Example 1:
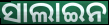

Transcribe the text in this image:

ସାଲାଇନ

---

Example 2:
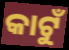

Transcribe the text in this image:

କାଟୁଁ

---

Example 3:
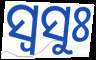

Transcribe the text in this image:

ସ୍ଵସୁଃ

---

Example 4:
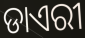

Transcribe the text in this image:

ଡାଏରୀ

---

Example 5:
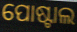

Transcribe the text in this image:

ପୋଷ୍ଟାଲ